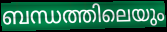
ബന്ധത്തിലെയും